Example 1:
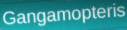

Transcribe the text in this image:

Gangamopteris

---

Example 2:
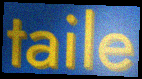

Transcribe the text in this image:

taile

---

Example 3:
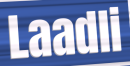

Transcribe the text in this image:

Laadli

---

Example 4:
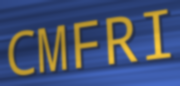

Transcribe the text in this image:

CMFRI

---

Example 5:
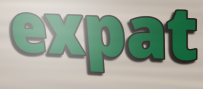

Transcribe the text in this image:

expat